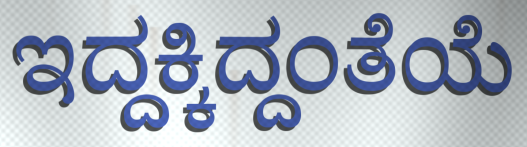
ಇದ್ದಕ್ಕಿದ್ದಂತೆಯೆ